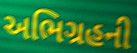
અભિગ્રહની